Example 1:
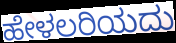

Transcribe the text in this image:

ಹೇಳಲರಿಯದು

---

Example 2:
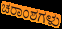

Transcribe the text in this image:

ಚರಾಂಶಗಳು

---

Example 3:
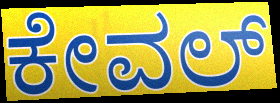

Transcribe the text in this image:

ಕೇವಲ್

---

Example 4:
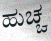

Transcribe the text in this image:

ಹುಚ್ಚ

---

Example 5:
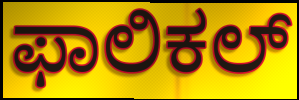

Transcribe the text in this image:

ಫಾಲಿಕಲ್